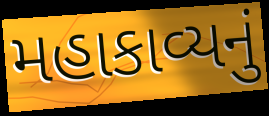
મહાકાવ્યનું